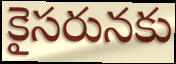
కైసరునకు